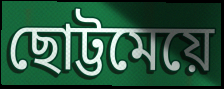
ছোট্টমেয়ে